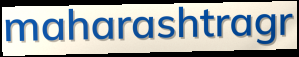
maharashtragr